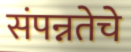
संपन्नतेचे